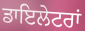
ਡਾਇਲੇਟਰਾਂ